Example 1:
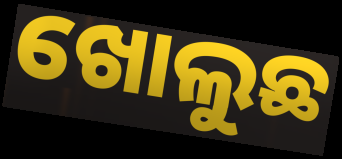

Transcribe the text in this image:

ଖୋଲୁଛ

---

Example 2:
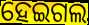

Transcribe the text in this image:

ହେଇଗଲ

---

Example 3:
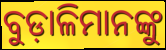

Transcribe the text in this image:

ବୁଡ଼ାଳିମାନଙ୍କୁ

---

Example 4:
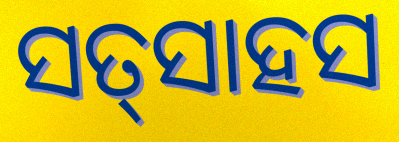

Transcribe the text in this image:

ସତ୍‌ସାହସ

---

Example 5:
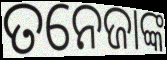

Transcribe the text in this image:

ତନେଜାଙ୍କ